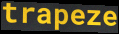
trapeze